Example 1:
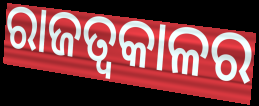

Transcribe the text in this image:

ରାଜତ୍ୱକାଳର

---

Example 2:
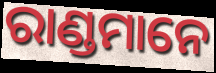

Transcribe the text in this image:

ରାଣ୍ଡମାନେ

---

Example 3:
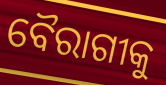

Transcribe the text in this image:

ବୈରାଗୀକୁ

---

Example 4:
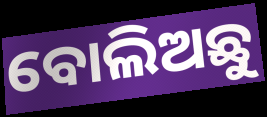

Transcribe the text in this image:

ବୋଲିଅଛୁ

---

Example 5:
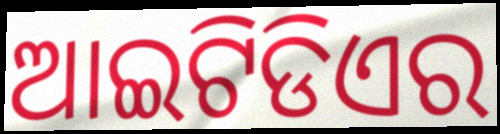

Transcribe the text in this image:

ଆଇଟିଡିଏର